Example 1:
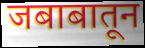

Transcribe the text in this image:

जबाबातून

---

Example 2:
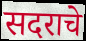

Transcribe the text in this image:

सदराचे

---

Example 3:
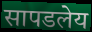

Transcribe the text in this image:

सापडलेय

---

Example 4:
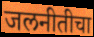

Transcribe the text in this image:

जलनीतीचा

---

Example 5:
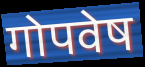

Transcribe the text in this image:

गोपवेष